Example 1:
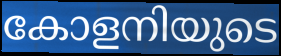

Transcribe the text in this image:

കോളനിയുടെ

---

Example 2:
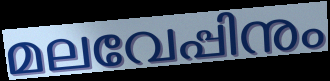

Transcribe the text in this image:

മലവേപ്പിനും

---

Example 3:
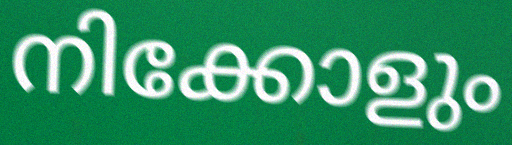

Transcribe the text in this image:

നിക്കോളും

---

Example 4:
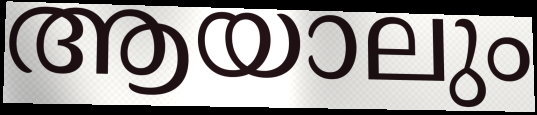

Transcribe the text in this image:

ആയാലും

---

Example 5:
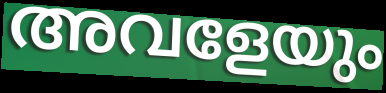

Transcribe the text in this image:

അവളേയും